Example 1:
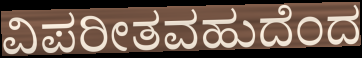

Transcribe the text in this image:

ವಿಪರೀತವಹುದೆಂದ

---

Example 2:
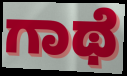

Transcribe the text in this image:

ಗಾಥೆ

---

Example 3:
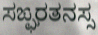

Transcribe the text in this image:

ಸಙ್ಘರತನಸ್ಸ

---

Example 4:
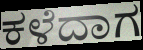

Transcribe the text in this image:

ಕಳೆದಾಗ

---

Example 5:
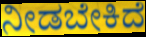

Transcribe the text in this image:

ನೀಡಬೇಕಿದೆ